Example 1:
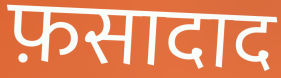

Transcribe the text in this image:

फ़सादाद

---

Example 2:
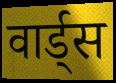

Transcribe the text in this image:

वार्ड्स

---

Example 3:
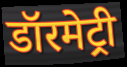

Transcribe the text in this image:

डॉरमेट्री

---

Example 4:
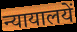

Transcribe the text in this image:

न्यायालयें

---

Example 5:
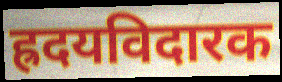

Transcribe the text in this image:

ह्रदयविदारक